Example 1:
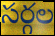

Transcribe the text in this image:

సర్గల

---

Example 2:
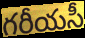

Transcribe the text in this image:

గరీయసీ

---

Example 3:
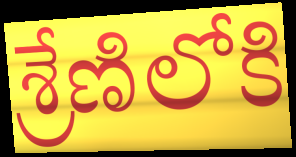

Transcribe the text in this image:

శ్రేణిలోకి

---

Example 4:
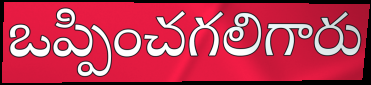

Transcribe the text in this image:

ఒప్పించగలిగారు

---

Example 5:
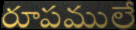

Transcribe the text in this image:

రూపములే